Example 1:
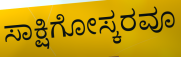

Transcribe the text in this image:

ಸಾಕ್ಷಿಗೋಸ್ಕರವೂ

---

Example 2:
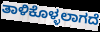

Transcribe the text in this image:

ತಾಳಿಕೊಳ್ಳಲಾಗದೆ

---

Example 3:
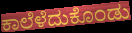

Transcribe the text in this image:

ಕಾಲೆಳೆದುಕೊಂಡು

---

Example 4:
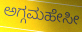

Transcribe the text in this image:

ಅಗ್ಗಮಹೇಸೀ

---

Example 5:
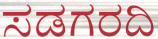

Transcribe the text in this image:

ಸಡಗರದಿ